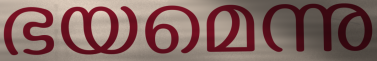
ഭയമെന്നു